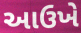
આઉખે